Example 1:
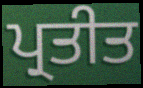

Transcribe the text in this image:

ਪ੍ਰਤੀਤ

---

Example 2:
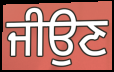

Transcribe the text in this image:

ਜੀਉਣ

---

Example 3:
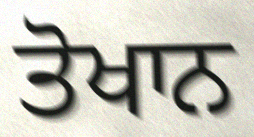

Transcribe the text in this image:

ਤੋਖਾਨ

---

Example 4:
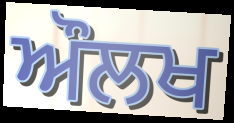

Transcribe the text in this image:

ਔਲਖ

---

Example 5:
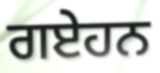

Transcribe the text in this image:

ਗਏਹਨ